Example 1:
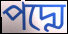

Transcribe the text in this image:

পদ্মে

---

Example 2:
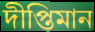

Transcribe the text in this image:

দীপ্তিমান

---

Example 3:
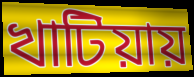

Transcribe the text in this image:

খাটিয়ায়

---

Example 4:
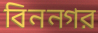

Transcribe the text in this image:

বিননগর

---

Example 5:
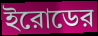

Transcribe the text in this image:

ইরোডের